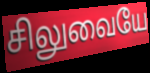
சிலுவையே